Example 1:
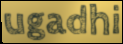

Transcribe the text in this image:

ugadhi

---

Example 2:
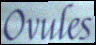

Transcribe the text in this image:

Ovules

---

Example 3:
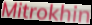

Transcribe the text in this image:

Mitrokhin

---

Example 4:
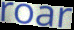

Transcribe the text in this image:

roar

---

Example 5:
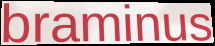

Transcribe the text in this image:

braminus